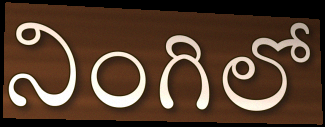
నింగిలో